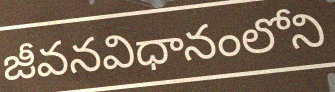
జీవనవిధానంలోని